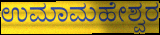
ಉಮಾಮಹೇಶ್ವರ